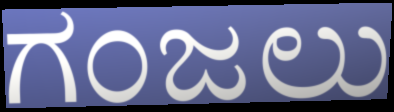
ಗಂಜಲು